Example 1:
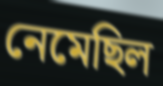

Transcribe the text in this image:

নেমেছিল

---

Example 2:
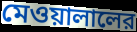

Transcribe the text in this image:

মেওয়ালালের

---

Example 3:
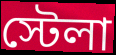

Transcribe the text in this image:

স্টেলা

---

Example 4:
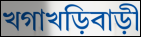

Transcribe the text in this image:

খগাখড়িবাড়ী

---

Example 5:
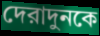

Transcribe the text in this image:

দেরাদুনকে